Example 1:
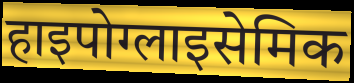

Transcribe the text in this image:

हाइपोग्लाइसेमिक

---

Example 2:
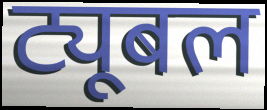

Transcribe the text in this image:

ट्यूबल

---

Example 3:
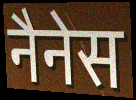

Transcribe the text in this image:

नैनेस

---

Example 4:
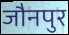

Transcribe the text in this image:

जौनपुर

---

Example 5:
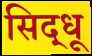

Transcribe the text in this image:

सिद्धू